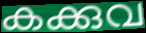
കക്കുവ